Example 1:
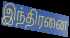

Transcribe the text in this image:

இந்திரனை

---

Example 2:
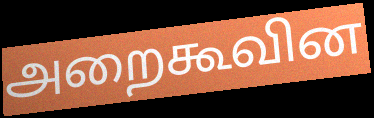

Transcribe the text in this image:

அறைகூவின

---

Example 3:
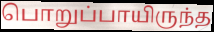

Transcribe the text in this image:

பொறுப்பாயிருந்த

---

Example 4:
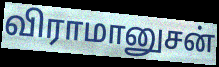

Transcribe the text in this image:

விராமானுசன்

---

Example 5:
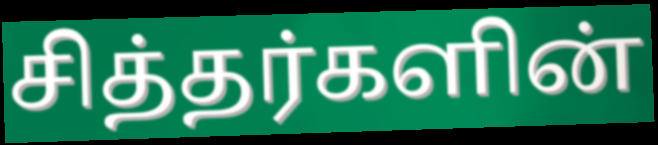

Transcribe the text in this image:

சித்தர்களின்